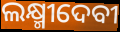
ଲକ୍ଷ୍ମୀଦେବୀ